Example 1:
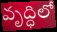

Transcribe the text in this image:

వృద్ధిలో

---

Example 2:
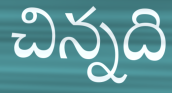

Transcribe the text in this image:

చిన్నది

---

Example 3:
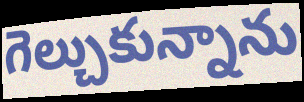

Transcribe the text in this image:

గెల్చుకున్నాను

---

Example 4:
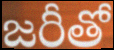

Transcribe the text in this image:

జరీతో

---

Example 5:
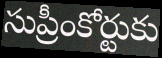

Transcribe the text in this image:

సుప్రీంకోర్టుకు